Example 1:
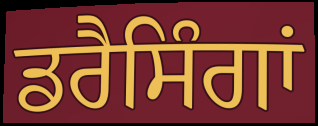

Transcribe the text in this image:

ਡਰੈਸਿੰਗਾਂ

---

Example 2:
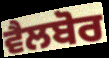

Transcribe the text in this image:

ਵੈਲਬੋਰ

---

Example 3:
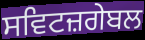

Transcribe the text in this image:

ਸਵਿਟਜ਼ਗੇਬਲ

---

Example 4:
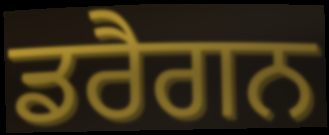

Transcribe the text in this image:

ਡਰੈਗਨ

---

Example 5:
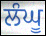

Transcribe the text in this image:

ਲੰਘੂ